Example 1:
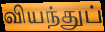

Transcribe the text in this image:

வியந்துப்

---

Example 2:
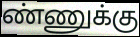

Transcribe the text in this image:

ண்ணுக்கு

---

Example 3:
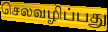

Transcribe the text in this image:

செலவழிப்பது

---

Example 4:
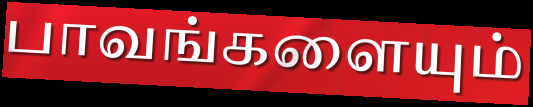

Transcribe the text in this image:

பாவங்களையும்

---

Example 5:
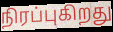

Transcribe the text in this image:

நிரப்புகிறது